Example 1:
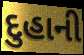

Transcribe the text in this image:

દુહાની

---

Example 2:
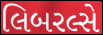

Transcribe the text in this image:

લિબરલ્સે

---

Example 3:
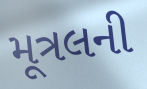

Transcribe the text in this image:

મૂત્રલની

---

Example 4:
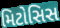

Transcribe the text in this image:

મિટોસિસ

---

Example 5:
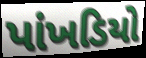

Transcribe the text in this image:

પાંખડિયો